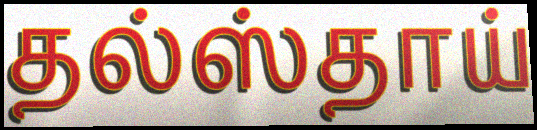
தல்ஸ்தாய்